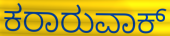
ಕರಾರುವಾಕ್